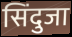
सिंदुजा